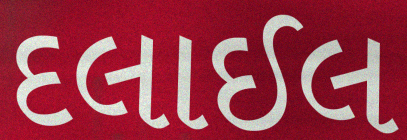
દલાઈલ